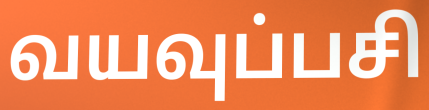
வயவுப்பசி